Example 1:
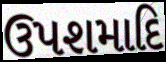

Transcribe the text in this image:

ઉપશમાદિ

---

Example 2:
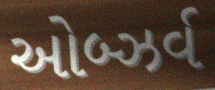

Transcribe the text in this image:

ઓબ્ઝર્વ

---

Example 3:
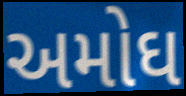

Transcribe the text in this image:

અમોઘ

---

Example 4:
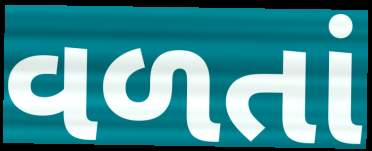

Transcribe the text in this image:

વળતાં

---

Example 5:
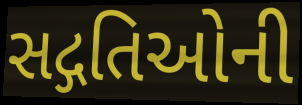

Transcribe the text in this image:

સદ્ગતિઓની